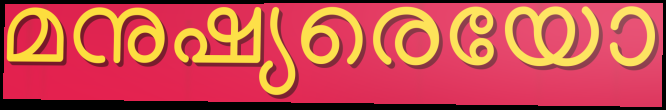
മനുഷ്യരെയോ